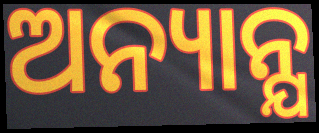
ଅନ୍ୟାନ୍ଯ